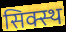
सिक्स्थ